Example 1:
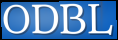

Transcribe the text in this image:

ODBL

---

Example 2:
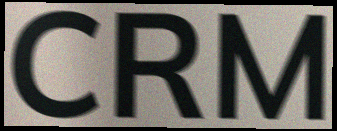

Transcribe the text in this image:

CRM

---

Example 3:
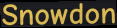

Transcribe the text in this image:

Snowdon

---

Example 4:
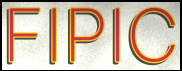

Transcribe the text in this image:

FIPIC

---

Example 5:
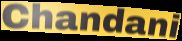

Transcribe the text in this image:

Chandani